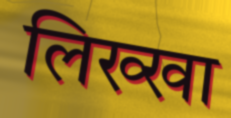
लिख्खा